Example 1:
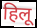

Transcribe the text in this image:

हिलू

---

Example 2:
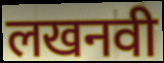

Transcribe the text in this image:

लखनवी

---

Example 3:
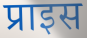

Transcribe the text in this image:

प्राइस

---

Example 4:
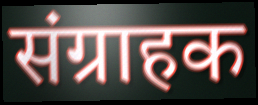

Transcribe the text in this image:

संग्राहक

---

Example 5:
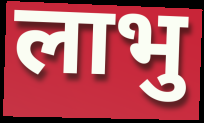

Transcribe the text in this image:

लाभु